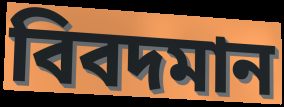
বিবদমান